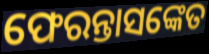
ଫେରନ୍ତାସଙ୍କେତ